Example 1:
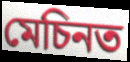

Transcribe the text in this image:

মেচিনত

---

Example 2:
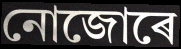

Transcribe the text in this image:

নোজোৰে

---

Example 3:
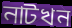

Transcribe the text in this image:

নাটখন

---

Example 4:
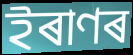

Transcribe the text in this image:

ইৰাণৰ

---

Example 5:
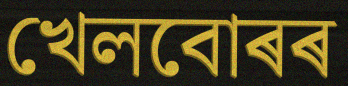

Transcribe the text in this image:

খেলবোৰৰ